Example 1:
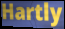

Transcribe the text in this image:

Hartly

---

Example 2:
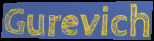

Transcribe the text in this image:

Gurevich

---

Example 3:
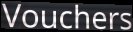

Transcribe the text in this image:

Vouchers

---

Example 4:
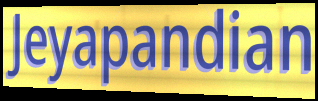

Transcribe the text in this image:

Jeyapandian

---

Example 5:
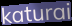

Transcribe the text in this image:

katurai